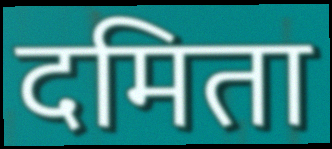
दमिता